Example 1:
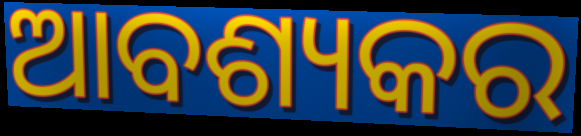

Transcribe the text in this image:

ଆବଶ୍ୟକର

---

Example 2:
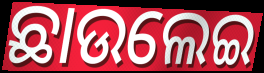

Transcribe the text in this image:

ଛାଉଲେଇ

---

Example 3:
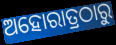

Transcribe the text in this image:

ଅହୋରାତ୍ରଠାରୁ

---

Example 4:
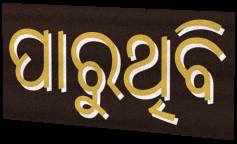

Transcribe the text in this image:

ପାରୁଥିବି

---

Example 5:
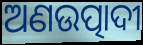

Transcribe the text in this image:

ଅଣଉତ୍ପାଦୀ